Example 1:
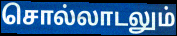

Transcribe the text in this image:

சொல்லாடலும்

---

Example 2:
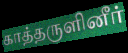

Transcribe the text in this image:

காத்தருளினீர்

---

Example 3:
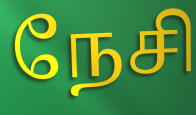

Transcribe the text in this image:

நேசி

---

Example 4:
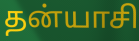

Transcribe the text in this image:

தன்யாசி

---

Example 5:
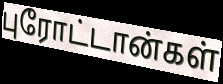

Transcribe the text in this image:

புரோட்டான்கள்